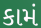
કામં